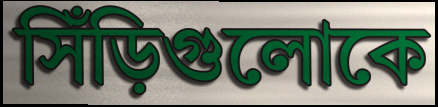
সিঁড়িগুলোকে